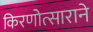
किरणोत्साराने